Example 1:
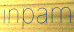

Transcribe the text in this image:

inpam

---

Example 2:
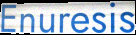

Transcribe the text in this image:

Enuresis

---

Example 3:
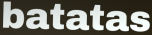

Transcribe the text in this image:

batatas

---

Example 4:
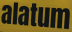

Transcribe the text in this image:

alatum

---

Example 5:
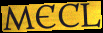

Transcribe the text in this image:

MECL